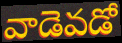
వాడెవడో